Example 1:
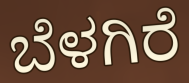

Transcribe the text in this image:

ಬೆಳಗಿರೆ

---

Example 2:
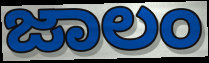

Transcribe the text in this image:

ಜಾಲಂ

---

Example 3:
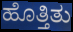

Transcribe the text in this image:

ಹೊತ್ತಿತು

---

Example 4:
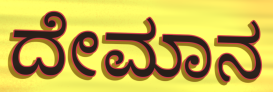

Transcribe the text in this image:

ದೇಮಾನ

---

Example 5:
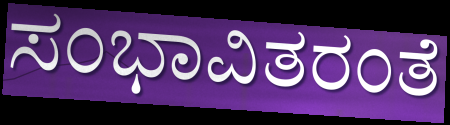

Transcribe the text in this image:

ಸಂಭಾವಿತರಂತೆ